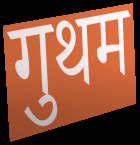
गुथम